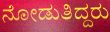
ನೋಡುತಿದ್ದರು